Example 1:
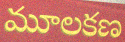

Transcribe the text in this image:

మూలకణ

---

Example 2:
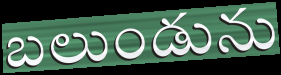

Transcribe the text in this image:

బలుండును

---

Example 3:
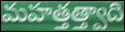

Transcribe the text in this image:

మహత్తత్త్వాది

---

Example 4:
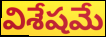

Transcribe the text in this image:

విశేషమే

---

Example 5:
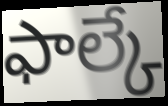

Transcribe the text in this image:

ఫాల్కే